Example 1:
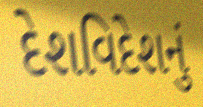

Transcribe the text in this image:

દેશવિદેશનું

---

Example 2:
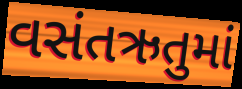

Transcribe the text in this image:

વસંતઋતુમાં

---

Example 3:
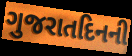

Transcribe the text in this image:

ગુજરાતદિનની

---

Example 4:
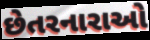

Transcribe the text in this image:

છેતરનારાઓ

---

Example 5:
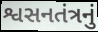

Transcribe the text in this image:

શ્વસનતંત્રનું